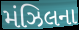
મંઝિલના